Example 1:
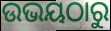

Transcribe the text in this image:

ଉଭୟଠାରୁ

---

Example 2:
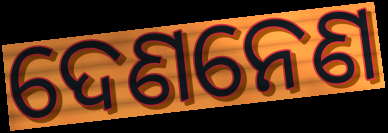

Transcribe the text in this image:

ଦେଣନେଣ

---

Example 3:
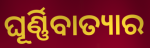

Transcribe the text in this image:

ଘୂର୍ଣ୍ଣିବାତ୍ୟାର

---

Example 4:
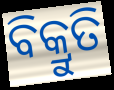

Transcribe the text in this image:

ବିକ୍ରୁତି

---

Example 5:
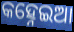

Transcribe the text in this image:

କହ୍ନେଇଆ